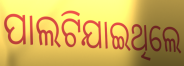
ପାଲଟିଯାଇଥିଲେ